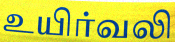
உயிர்வலி